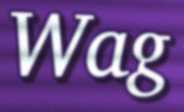
Wag